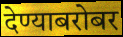
देण्याबरोबर